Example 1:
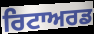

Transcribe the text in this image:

ਰਿਟਾਅਰਡ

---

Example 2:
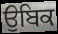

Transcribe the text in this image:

ਉਬਿਕ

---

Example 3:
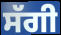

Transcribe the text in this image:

ਸੱਗੀ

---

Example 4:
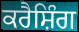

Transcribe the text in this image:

ਕਰੈਸ਼ਿੰਗ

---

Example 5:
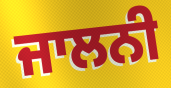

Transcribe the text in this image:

ਜਾਲਨੀ